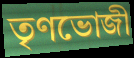
তৃণভোজী